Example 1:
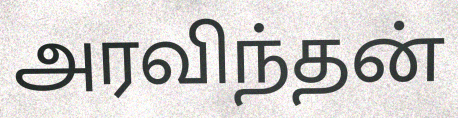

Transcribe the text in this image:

அரவிந்தன்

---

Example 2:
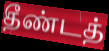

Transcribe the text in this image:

தீண்டத்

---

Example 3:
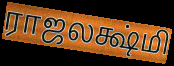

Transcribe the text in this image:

ராஜலக்ஷ்மி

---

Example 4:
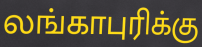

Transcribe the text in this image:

லங்காபுரிக்கு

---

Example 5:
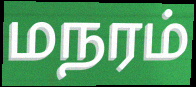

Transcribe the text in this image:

மநரம்